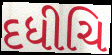
દધીચિ